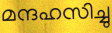
മന്ദഹസിച്ചു